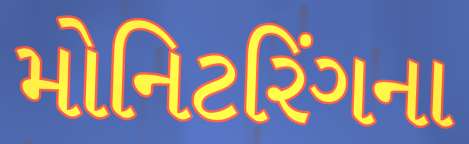
મોનિટરિંગના